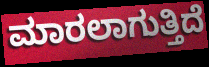
ಮಾರಲಾಗುತ್ತಿದೆ